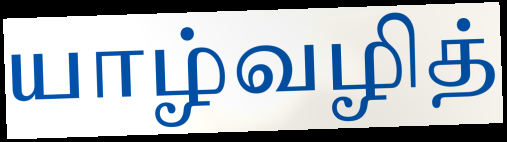
யாழ்வழித்